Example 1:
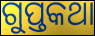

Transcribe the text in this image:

ଗୁପ୍ତକଥା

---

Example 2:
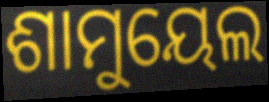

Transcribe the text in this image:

ଶାମୁୟେଲ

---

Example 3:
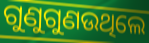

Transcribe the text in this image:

ଗୁଣୁଗୁଣଉଥିଲେ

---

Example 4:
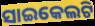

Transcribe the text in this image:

ସାଇକେଲଟି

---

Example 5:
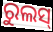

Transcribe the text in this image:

ରୁଲସ୍